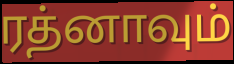
ரத்னாவும்